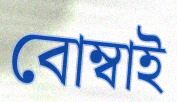
বোম্বাই